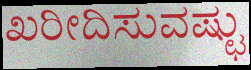
ಖರೀದಿಸುವಷ್ಟು